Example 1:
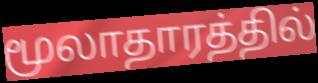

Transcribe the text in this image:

மூலாதாரத்தில்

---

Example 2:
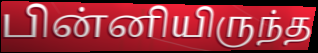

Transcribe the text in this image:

பின்னியிருந்த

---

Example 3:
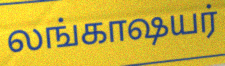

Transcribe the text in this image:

லங்காஷயர்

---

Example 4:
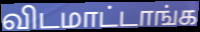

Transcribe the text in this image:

விடமாட்டாங்க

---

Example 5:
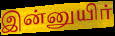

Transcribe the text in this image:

இன்னுயிர்